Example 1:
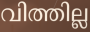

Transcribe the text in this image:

വിത്തില്ല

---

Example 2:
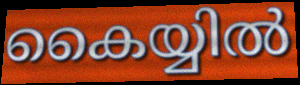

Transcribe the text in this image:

കൈയ്യിൽ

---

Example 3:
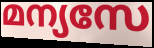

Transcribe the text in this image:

മന്യസേ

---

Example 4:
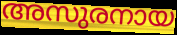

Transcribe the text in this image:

അസുരനായ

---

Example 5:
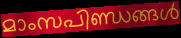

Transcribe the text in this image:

മാംസപിണ്ഡങ്ങൾ